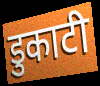
डुकाटी